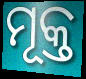
ମୂକ୍ତ